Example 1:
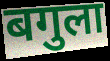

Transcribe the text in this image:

बगुला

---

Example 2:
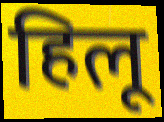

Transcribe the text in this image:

हिलू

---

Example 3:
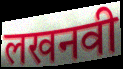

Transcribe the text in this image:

लखनवी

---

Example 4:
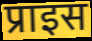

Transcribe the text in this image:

प्राइस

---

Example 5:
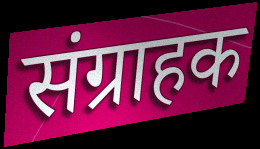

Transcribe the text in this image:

संग्राहक